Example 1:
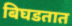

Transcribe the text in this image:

बिघडतात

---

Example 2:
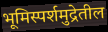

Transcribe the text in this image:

भूमिस्पर्शमुद्रेतील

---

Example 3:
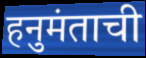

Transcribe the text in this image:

हनुमंताची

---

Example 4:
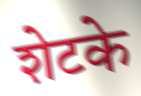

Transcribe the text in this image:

शेटके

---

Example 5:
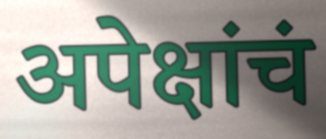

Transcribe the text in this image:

अपेक्षांचं